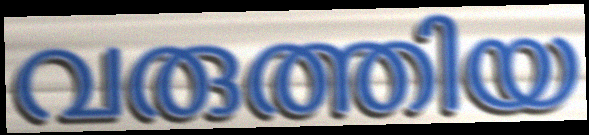
വരുത്തിയ